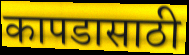
कापडासाठी